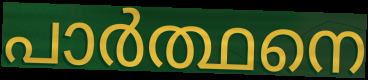
പാർത്ഥനെ